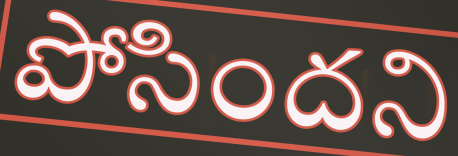
పోసిందని